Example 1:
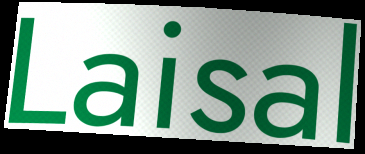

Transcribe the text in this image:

Laisal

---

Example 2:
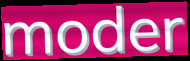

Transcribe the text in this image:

moder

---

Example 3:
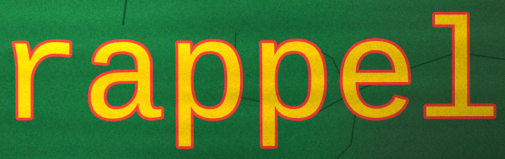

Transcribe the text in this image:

rappel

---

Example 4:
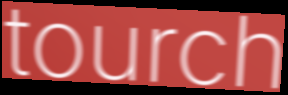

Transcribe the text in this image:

tourch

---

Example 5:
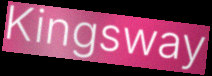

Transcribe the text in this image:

Kingsway